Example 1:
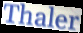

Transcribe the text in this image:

Thaler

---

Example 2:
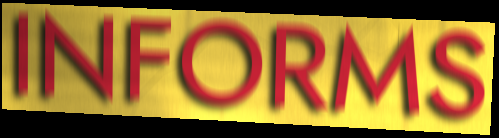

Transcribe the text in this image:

INFORMS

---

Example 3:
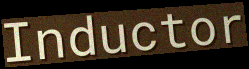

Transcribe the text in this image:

Inductor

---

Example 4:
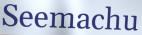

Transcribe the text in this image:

Seemachu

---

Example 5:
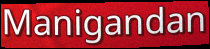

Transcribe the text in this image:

Manigandan